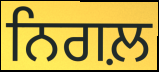
ਨਿਗਲ਼